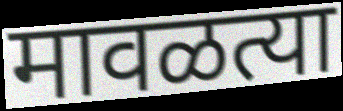
मावळत्या